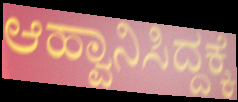
ಆಹ್ವಾನಿಸಿದ್ದಕ್ಕೆ